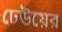
ঢেউয়ের